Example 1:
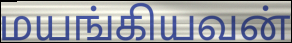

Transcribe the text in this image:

மயங்கியவன்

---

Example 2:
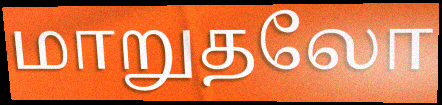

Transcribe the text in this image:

மாறுதலோ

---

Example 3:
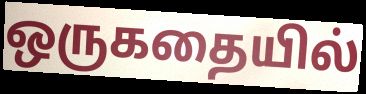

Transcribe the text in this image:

ஒருகதையில்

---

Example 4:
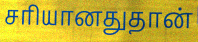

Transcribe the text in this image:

சரியானதுதான்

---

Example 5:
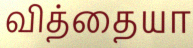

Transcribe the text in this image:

வித்தையா